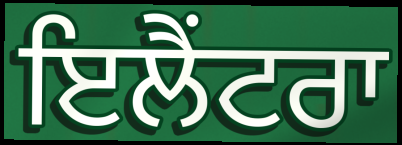
ਇਲੈਂਟਰਾ